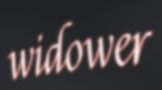
widower